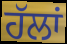
ਹੱਲਾਂ